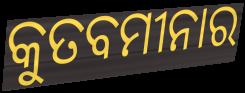
କୁତବମୀନାର